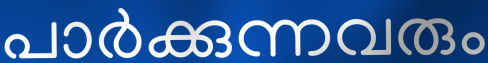
പാർക്കുന്നവരും